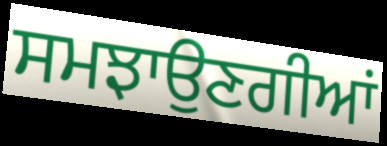
ਸਮਝਾਉਣਗੀਆਂ